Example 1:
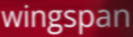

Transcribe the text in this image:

wingspan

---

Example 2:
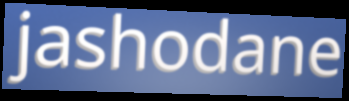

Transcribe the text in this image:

jashodane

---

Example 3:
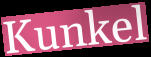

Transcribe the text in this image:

Kunkel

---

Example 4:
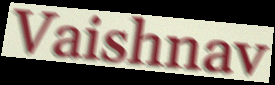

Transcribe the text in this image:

Vaishnav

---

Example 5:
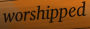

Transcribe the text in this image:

worshipped